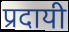
प्रदायी